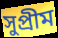
সুপ্রীম